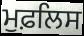
ਮੁਫ਼ਲਿਸ